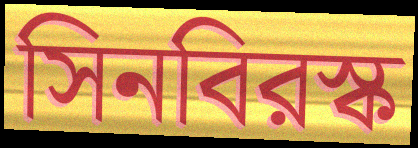
সিনবিরস্ক